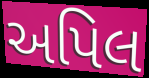
અપિલ